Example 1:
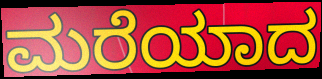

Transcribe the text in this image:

ಮರೆಯಾದ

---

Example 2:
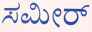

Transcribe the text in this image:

ಸಮೀರ್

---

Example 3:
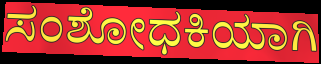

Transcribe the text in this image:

ಸಂಶೋಧಕಿಯಾಗಿ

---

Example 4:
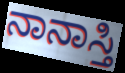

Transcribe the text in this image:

ನಾನಾಸ್ತಿ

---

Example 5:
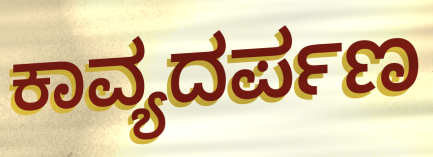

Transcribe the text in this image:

ಕಾವ್ಯದರ್ಪಣ